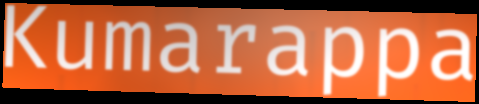
Kumarappa